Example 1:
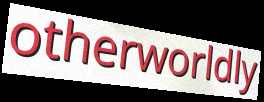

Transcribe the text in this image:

otherworldly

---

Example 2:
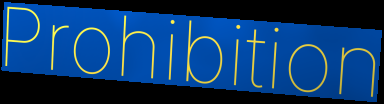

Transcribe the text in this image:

Prohibition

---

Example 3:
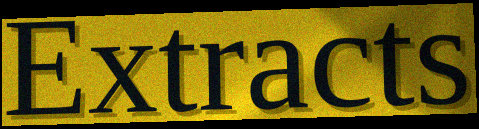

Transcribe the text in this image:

Extracts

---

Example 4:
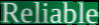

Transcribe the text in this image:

Reliable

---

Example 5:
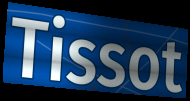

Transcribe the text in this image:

Tissot